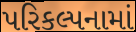
પરિકલ્પનામાં